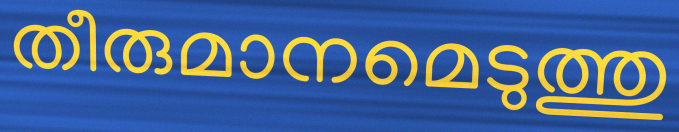
തീരുമാനമെടുത്തു